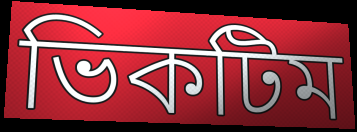
ভিকটিম